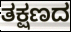
ತಕ್ಷಣದ